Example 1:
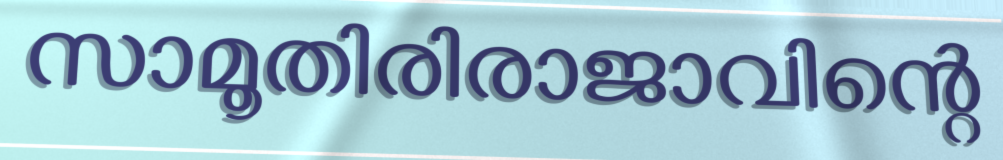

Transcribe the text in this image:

സാമൂതിരിരാജാവിന്റെ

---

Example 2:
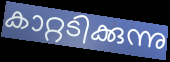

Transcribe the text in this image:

കാറ്റടിക്കുന്നു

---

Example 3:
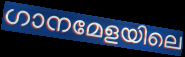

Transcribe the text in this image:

ഗാനമേളയിലെ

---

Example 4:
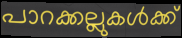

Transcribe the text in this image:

പാറക്കല്ലുകൾക്ക്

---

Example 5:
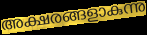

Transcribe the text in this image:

അക്ഷരങ്ങളാകുന്നു